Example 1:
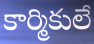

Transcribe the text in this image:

కార్మికులే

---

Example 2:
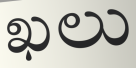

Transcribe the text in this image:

ఖలు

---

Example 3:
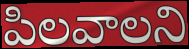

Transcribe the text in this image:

పిలవాలని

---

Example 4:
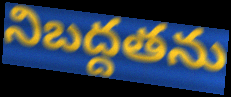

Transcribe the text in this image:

నిబద్దతను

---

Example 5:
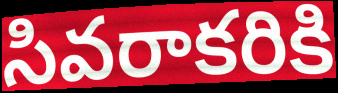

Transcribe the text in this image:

సివరాకరికి